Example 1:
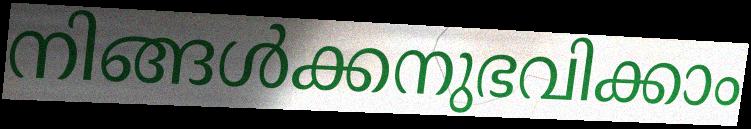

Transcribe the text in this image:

നിങ്ങൾക്കനുഭവിക്കാം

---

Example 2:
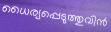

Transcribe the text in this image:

ധൈര്യപ്പെടുത്തുവിൻ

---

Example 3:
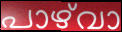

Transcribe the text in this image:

പാഴ്‌വാ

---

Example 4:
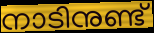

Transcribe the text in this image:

നാടിനുണ്ട്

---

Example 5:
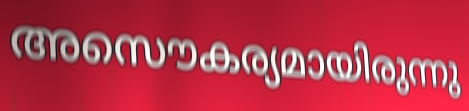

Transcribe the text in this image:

അസൌകര്യമായിരുന്നു